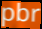
pbr